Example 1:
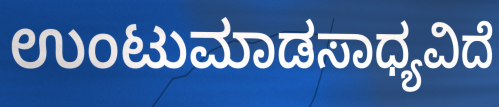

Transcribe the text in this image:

ಉಂಟುಮಾಡಸಾಧ್ಯವಿದೆ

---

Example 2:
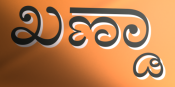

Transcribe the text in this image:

ಖಣ್ಡಾ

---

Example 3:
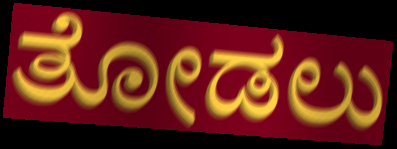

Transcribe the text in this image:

ತೋಡಲು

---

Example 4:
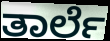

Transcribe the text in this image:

ತಾರ್ಲೆ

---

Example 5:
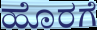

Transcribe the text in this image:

ಹೊರಗೆ